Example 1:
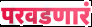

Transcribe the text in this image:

परवडणारं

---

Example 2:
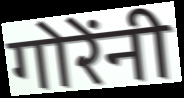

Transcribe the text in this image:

गोरेंनी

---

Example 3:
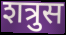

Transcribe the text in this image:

शत्रुस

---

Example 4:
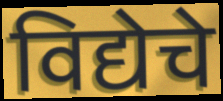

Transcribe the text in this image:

विद्येचे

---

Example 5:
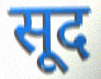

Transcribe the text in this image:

सूद